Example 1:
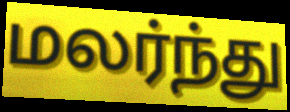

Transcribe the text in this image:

மலர்ந்து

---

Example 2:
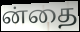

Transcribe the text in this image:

ன்தை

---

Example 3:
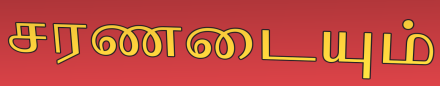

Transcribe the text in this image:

சரணடையும்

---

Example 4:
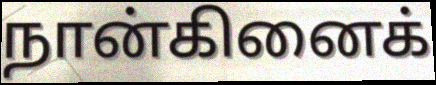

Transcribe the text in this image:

நான்கினைக்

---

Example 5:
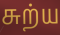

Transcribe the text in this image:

சுற்ய